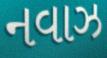
નવાઝ